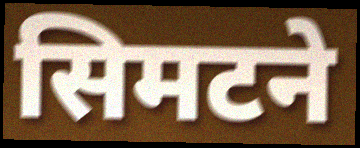
सिमटने